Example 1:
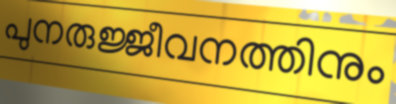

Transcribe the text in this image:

പുനരുജ്ജീവനത്തിനും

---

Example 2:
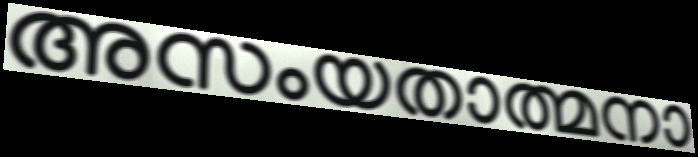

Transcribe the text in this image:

അസംയതാത്മനാ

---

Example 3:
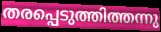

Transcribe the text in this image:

തരപ്പെടുത്തിത്തന്നു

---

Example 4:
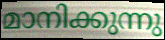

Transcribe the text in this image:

മാനിക്കുന്നു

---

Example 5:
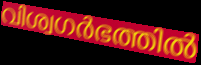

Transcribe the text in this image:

വിശ്വഗർഭത്തിൽ